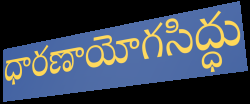
ధారణాయోగసిద్ధు